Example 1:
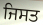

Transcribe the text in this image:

ਜਿਸਤ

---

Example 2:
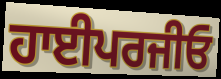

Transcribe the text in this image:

ਹਾਈਪਰਜੀਓ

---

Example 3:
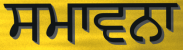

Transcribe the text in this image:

ਸਮਾਵਨਾ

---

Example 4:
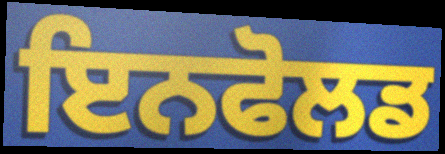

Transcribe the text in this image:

ਇਨਫੋਲਡ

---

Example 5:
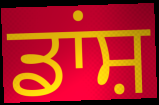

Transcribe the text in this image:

ਡਾਂਸ਼